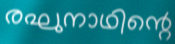
രഘുനാഥിന്റെ